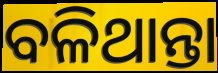
ବଳିଥାନ୍ତା